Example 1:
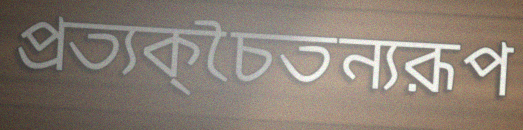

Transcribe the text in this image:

প্রত্যক্‌চৈতন্যরূপ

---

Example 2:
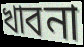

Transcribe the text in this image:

খাবনা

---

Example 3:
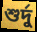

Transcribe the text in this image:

শুর্দু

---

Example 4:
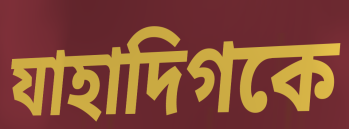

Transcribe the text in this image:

যাহাদিগকে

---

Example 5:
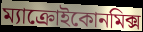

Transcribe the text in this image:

ম্যাক্রোইকোনমিক্স